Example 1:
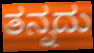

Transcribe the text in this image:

ತನ್ನದು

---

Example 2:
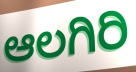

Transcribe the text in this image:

ಆಲಗಿರಿ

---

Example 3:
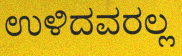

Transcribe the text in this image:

ಉಳಿದವರಲ್ಲ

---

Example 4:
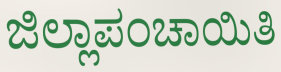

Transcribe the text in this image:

ಜಿಲ್ಲಾಪಂಚಾಯಿತಿ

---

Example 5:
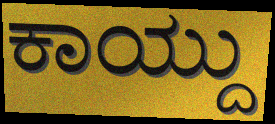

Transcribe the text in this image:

ಕಾಯ್ದು